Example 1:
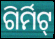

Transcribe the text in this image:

ଗିର୍ମିଟ୍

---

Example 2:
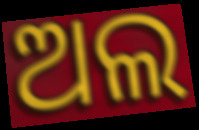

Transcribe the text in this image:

ଅଲ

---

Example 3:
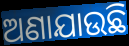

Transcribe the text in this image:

ଅଣାଯାଉଛି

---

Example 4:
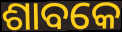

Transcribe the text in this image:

ଶାବକେ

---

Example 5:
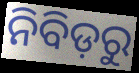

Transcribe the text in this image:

ନିବିଡ଼ରୁ